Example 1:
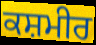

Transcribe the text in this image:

ਕਸ਼ਮੀਰ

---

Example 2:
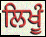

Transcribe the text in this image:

ਲਿਖੂੰ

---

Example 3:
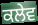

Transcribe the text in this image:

ਕਲੇਵ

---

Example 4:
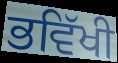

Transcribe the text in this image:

ਭਵਿੱਖੀ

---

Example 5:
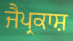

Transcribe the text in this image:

ਜੈਪ੍ਰਕਾਸ਼